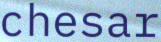
chesar